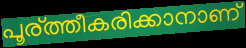
പൂര്ത്തീകരിക്കാനാണ്